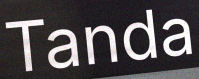
Tanda